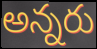
అన్నరు